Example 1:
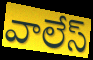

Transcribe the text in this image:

వాలేస్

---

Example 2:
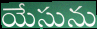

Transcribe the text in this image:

యేసును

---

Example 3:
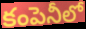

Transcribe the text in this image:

కంపెనీలో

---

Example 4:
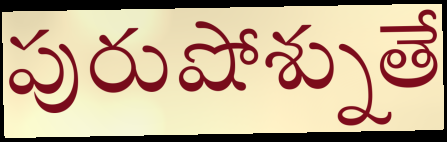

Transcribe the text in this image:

పురుషోశ్నుతే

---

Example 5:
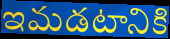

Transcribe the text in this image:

ఇమడటానికి